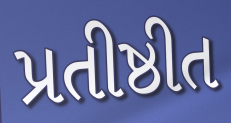
પ્રતીષ્ઠીત